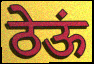
ठेऊं